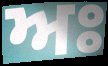
ਅਃ